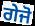
ਗੇਜੋ